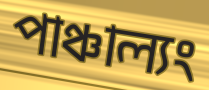
পাঞ্চাল্যং